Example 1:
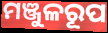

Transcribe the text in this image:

ମଞ୍ଜୁଳରୂପ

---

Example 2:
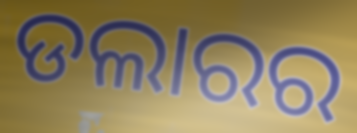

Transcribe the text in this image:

ଡଲାରର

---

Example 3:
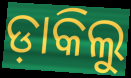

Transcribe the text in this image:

ଡ଼ାକିଲୁ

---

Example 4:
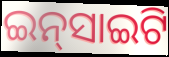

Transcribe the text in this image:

ଇନ୍‌ସାଇଟି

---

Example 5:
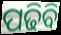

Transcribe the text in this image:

ପଢିବି